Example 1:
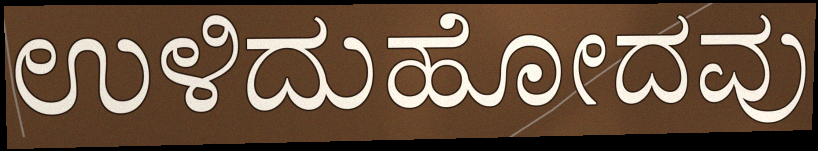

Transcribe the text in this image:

ಉಳಿದುಹೋದವು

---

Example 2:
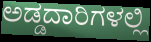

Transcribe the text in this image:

ಅಡ್ಡದಾರಿಗಳಲ್ಲಿ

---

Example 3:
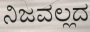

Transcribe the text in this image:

ನಿಜವಲ್ಲದ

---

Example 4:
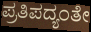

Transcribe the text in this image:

ಪ್ರತಿಪದ್ಯಂತೇ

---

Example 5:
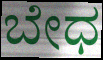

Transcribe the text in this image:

ಬೇಧ